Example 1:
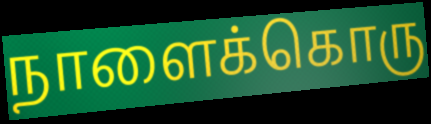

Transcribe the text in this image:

நாளைக்கொரு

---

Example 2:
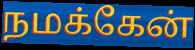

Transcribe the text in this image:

நமக்கேன்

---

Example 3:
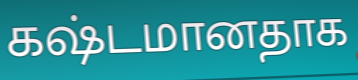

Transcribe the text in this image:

கஷ்டமானதாக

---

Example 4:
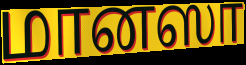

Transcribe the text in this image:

மானஸா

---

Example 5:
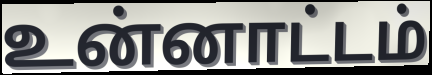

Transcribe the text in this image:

உன்னாட்டம்